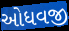
ઓધવજી